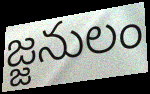
జ్జనులం